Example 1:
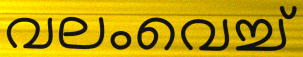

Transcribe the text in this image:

വലംവെച്ച്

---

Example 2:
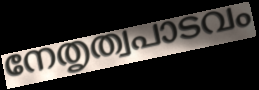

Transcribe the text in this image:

നേതൃത്വപാടവം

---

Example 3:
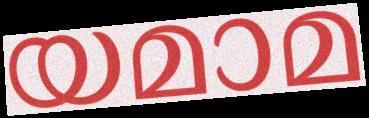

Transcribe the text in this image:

യമാമ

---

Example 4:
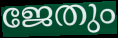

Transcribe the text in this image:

ജേതും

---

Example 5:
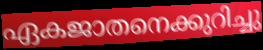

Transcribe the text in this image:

ഏകജാതനെക്കുറിച്ചു